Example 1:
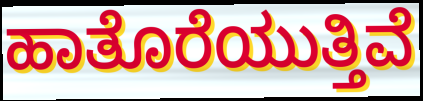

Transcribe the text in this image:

ಹಾತೊರೆಯುತ್ತಿವೆ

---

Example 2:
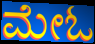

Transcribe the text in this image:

ಮೇಓ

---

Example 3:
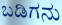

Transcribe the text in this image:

ಬಡಿಗನು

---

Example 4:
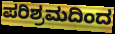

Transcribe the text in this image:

ಪರಿಶ್ರಮದಿಂದ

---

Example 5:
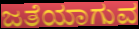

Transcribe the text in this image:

ಜತೆಯಾಗುವ